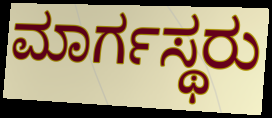
ಮಾರ್ಗಸ್ಥರು